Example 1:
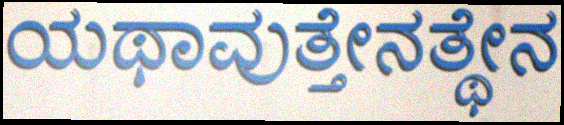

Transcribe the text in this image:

ಯಥಾವುತ್ತೇನತ್ಥೇನ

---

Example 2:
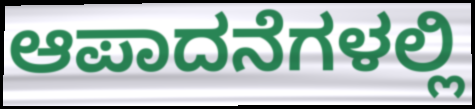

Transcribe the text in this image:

ಆಪಾದನೆಗಳಲ್ಲಿ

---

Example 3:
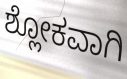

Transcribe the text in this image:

ಶ್ಲೋಕವಾಗಿ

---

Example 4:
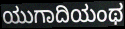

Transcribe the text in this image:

ಯುಗಾದಿಯಂಥ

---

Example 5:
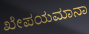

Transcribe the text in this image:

ಖೇಪಯಮಾನಾ